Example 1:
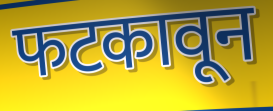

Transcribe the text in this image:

फटकावून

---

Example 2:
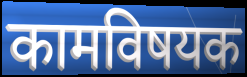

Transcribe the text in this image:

कामविषयक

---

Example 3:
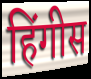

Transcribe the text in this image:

हिंगीस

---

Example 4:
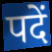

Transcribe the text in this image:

पदें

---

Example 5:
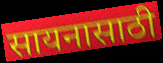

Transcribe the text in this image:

सायनासाठी